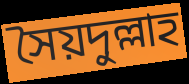
সৈয়দুল্লাহ